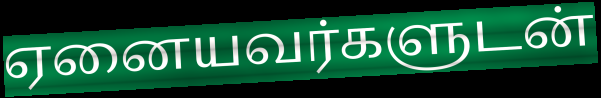
ஏனையவர்களுடன்